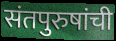
संतपुरुषांची